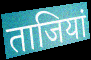
ताजियां